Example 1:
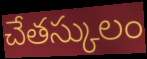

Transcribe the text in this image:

చేతస్కులం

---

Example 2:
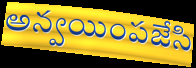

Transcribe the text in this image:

అన్వయింపజేసి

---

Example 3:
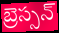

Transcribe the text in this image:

బ్రెస్సన్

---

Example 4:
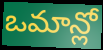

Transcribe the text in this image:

ఒమాన్లో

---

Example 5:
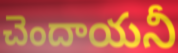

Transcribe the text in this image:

చెందాయనీ